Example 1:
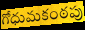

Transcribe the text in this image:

గోధుమకంఠపు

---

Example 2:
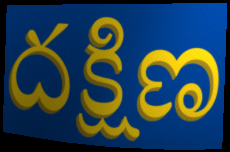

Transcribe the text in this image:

దక్షిణ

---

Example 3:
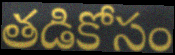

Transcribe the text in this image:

తడికోసం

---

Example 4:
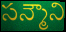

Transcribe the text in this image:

సన్మౌని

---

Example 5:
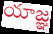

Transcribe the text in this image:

యాజ్ఞ